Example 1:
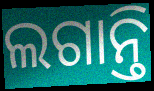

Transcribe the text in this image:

ଲଗାନ୍ତି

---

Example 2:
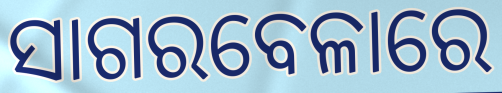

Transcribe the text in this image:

ସାଗରବେଳାରେ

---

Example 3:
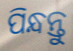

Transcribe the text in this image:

ପିନ୍ଧନ୍ତୁ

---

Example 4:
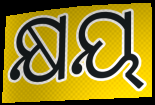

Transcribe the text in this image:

କ୍ଷୟ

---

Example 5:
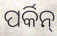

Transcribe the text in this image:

ପର୍କିନ୍